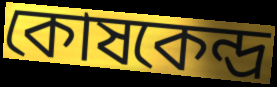
কোষকেন্দ্ৰ